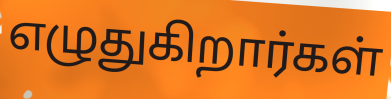
எழுதுகிறார்கள்